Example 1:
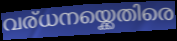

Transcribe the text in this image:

വര്ധനയ്ക്കെതിരെ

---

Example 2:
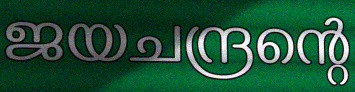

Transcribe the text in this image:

ജയചന്ദ്രന്റെ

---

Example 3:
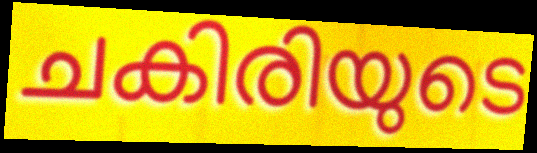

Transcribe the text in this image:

ചകിരിയുടെ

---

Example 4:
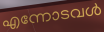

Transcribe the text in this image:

എന്നോടവൾ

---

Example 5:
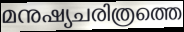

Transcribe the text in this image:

മനുഷ്യചരിത്രത്തെ